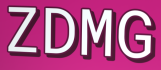
ZDMG